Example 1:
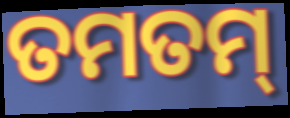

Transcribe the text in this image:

ତମତମ୍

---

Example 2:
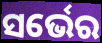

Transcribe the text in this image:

ସର୍ଭେର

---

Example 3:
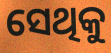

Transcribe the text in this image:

ସେଥିକୁ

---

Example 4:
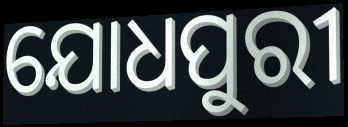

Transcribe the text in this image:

ଯୋଧପୁରୀ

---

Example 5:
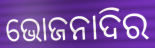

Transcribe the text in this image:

ଭୋଜନାଦିର